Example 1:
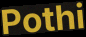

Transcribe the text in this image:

Pothi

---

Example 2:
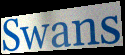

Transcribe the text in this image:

Swans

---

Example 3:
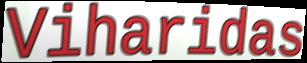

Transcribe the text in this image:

Viharidas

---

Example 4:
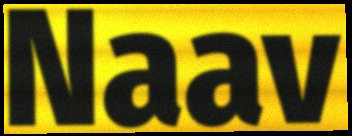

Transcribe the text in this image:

Naav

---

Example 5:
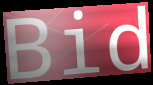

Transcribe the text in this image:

Bid